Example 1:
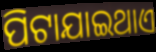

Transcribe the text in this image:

ପିଟାଯାଇଥାଏ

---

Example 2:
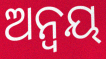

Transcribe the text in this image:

ଅନ୍ୱୟ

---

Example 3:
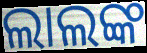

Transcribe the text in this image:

ଲାଲଙ୍କ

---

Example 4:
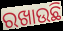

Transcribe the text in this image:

ରଖାଉଛି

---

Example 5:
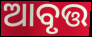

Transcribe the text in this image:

ଆବୃତ୍ତ